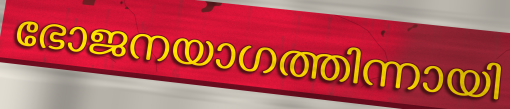
ഭോജനയാഗത്തിന്നായി